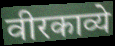
वीरकाव्ये